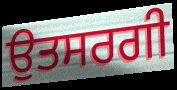
ਉਤਸਰਗੀ